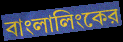
বাংলালিংকের